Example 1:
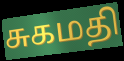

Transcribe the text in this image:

சுகமதி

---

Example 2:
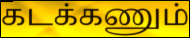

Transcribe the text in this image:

கடக்கணும்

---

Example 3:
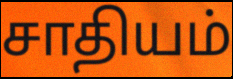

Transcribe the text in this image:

சாதியம்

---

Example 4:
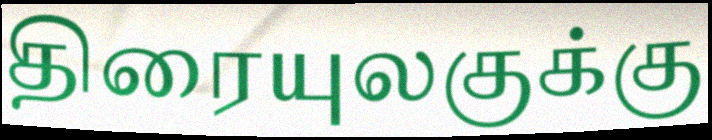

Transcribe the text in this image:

திரையுலகுக்கு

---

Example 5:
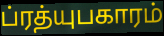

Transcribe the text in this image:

ப்ரத்யுபகாரம்